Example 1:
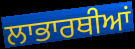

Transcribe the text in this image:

ਲਾਭਾਰਥੀਆਂ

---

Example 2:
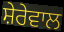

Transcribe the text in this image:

ਸ਼ੇਰੇਵਾਲ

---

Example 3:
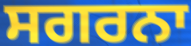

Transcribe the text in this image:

ਸਗਰਨਾ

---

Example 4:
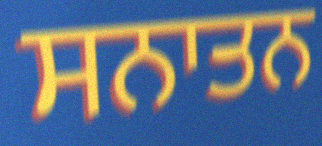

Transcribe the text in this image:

ਸਨਾਤਨ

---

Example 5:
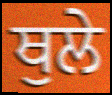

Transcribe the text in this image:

ਥੁਲੇ